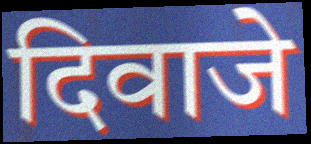
दिवाजे